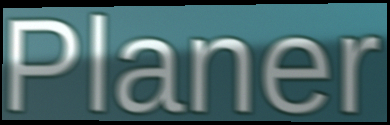
Planer